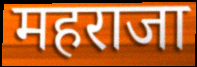
महराजा